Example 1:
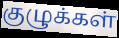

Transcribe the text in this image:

குழுக்கள்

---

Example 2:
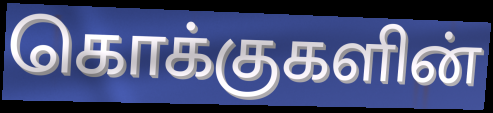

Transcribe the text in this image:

கொக்குகளின்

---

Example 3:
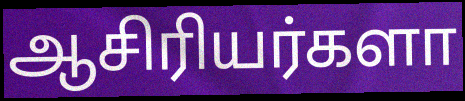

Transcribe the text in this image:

ஆசிரியர்களா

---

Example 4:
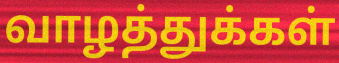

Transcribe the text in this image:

வாழத்துக்கள்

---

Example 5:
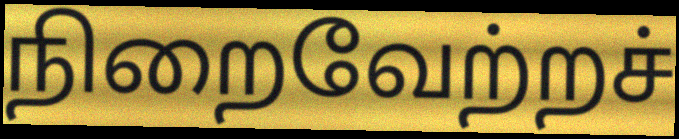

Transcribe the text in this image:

நிறைவேற்றச்